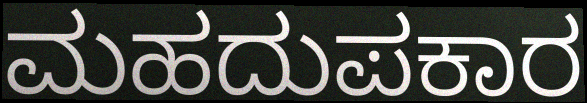
ಮಹದುಪಕಾರ